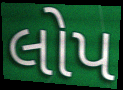
લોપ